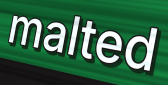
malted